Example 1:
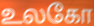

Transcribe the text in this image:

உலகோ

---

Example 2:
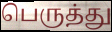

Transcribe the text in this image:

பெருத்து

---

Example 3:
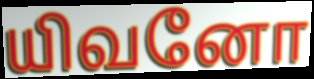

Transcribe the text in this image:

யிவனோ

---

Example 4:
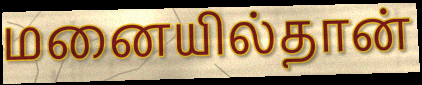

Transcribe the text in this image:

மனையில்தான்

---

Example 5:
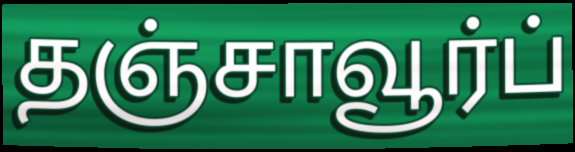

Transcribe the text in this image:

தஞ்சாவூர்ப்